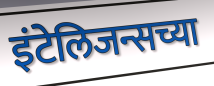
इंटेलिजन्सच्या